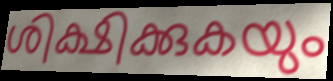
ശിക്ഷിക്കുകയും